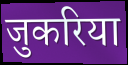
जुकरिया